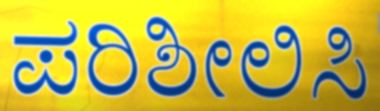
ಪರಿಶೀಲಿಸಿ